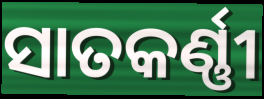
ସାତକର୍ଣ୍ଣୀ